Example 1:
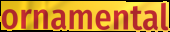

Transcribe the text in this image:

ornamental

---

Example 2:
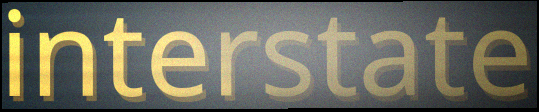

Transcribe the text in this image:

interstate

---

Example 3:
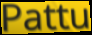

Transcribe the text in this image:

Pattu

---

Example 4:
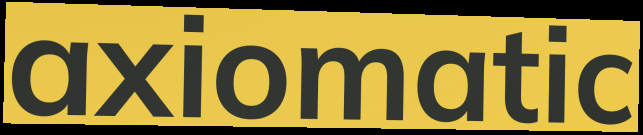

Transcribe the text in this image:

axiomatic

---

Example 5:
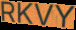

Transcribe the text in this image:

RKVY